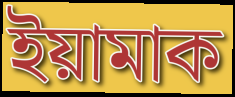
ইয়ামাক